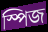
স্পিজ